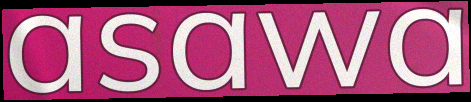
asawa